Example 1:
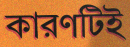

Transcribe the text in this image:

কারণটিই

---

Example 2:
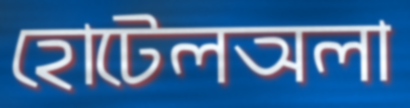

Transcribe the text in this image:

হোটেলঅলা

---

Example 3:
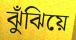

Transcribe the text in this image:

ঝুঁঝিয়ে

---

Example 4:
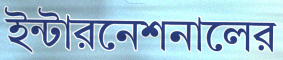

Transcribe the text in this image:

ইন্টারনেশনালের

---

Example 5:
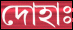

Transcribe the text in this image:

দোহাঃ